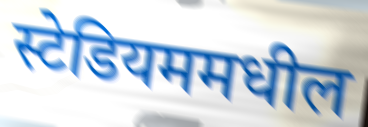
स्टेडियममधील